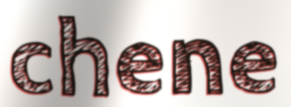
chene